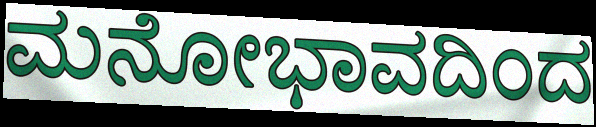
ಮನೋಭಾವದಿಂದ